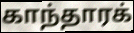
காந்தாரக்